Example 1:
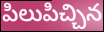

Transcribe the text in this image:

పిలుపిచ్చిన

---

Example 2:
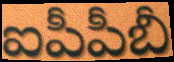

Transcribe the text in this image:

ఐపీపీబీ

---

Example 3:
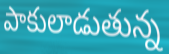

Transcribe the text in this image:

పాకులాడుతున్న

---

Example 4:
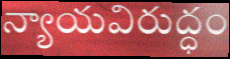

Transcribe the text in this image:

న్యాయవిరుద్ధం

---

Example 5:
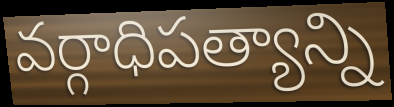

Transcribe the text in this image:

వర్గాధిపత్యాన్ని